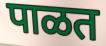
पाळत